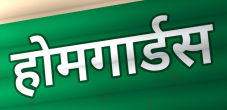
होमगार्डस